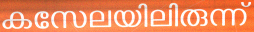
കസേലയിലിരുന്ന്